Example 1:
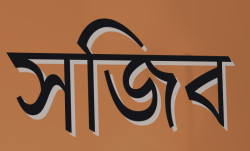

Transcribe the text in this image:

সজিব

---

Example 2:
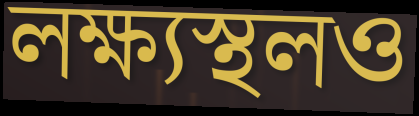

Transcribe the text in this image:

লক্ষ্যস্থলও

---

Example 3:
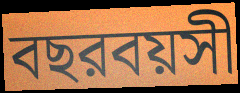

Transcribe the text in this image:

বছরবয়সী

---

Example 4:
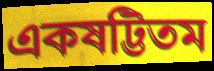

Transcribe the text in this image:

একষট্টিতম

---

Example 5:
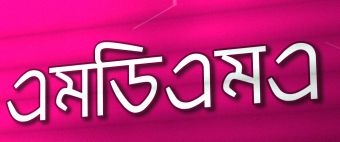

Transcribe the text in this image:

এমডিএমএ